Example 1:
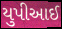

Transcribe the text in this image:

યુપીઆઈ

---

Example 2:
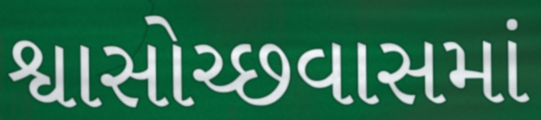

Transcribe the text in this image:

શ્વાસોચ્છવાસમાં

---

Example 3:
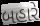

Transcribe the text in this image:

બહારે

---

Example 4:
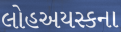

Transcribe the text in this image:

લોહઅયસ્કના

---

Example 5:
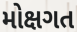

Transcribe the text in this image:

મોક્ષગત